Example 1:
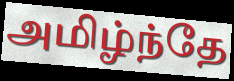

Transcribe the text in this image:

அமிழ்ந்தே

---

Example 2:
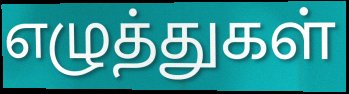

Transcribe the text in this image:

எழுத்துகள்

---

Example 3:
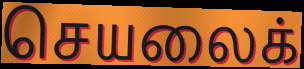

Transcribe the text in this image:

செயலைக்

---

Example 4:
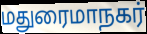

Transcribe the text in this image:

மதுரைமாநகர்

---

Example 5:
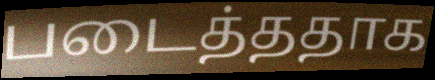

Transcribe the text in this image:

படைத்ததாக